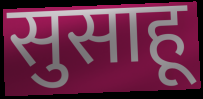
सुसाहू